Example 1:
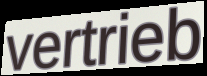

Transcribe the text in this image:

vertrieb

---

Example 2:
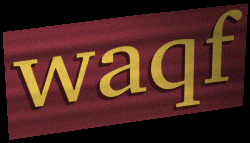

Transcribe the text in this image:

waqf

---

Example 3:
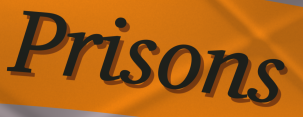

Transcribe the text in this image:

Prisons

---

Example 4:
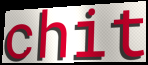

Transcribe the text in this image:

chit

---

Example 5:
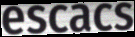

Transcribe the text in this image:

escacs